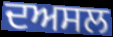
ਦਅਸਲ